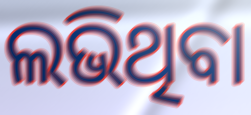
ଲଭିଥିବା